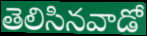
తెలిసినవాడో